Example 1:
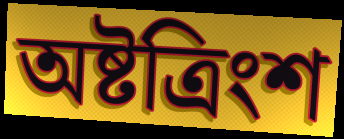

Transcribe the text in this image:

অষ্টত্রিংশ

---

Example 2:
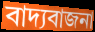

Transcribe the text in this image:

বাদ্যবাজনা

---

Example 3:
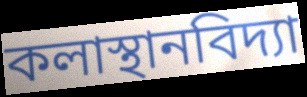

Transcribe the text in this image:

কলাস্থানবিদ্যা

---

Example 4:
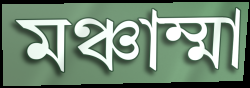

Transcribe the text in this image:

মঞ্চাম্মা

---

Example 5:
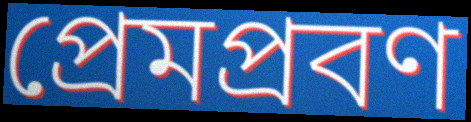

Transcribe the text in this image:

প্রেমপ্রবণ